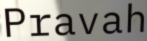
Pravah